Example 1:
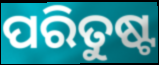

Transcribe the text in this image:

ପରିତୁଷ୍ଟ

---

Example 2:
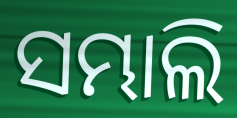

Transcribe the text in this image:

ସମ୍ଭାଲି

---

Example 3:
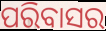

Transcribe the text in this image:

ପରିବାସର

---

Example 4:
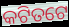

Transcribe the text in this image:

କଟିତଟେ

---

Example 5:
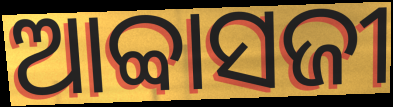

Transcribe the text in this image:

ଆବ୍ବାସଜୀ